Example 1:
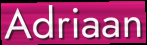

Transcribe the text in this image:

Adriaan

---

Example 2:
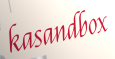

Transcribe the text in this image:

kasandbox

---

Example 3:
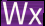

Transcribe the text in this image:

Wx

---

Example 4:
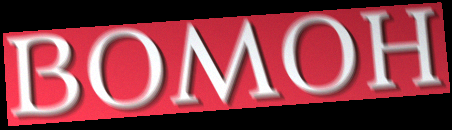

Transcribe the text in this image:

BOMOH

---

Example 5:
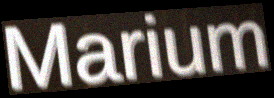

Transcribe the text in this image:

Marium